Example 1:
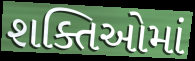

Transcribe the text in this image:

શક્તિઓમાં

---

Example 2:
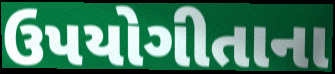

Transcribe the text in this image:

ઉપયોગીતાના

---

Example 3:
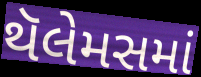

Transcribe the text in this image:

થૅલેમસમાં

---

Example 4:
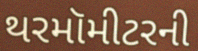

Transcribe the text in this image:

થરમૉમીટરની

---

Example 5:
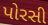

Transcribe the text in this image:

પોરસી